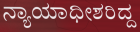
ನ್ಯಾಯಾಧೀಶರಿದ್ದ